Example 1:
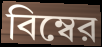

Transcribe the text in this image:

বিম্বের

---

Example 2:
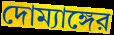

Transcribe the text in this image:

দোম্যাঙ্গের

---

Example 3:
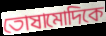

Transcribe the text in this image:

তোষামোদিকে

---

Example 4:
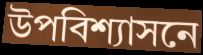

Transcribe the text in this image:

উপবিশ্যাসনে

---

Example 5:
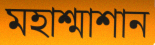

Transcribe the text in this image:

মহাশ্মাশান